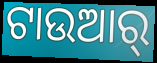
ଟାଉଆର୍